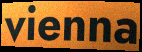
vienna